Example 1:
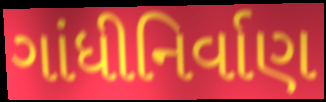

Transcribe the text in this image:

ગાંધીનિર્વાણ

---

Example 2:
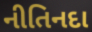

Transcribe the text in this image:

નીતિનદા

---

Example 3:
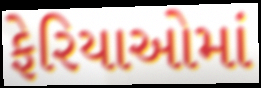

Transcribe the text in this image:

ફેરિયાઓમાં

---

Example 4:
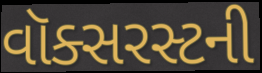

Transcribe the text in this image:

વૉક્સરસ્ટની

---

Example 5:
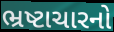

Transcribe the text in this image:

ભ્રષ્ટાચારનો